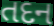
તદન